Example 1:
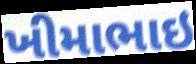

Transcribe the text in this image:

ખીમાભાઇ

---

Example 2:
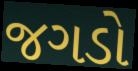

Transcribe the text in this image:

જગડો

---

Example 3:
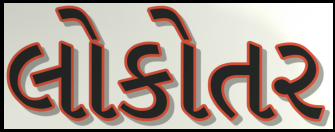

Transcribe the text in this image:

લોકોતર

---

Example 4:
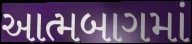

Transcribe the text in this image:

આત્મબાગમાં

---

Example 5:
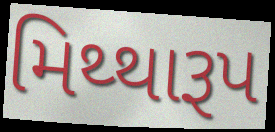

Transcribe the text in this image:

મિથ્થારૂપ